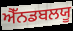
ਐੱਨਡਬਲਯੂ